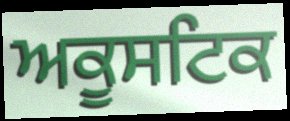
ਅਕੂਸਟਿਕ